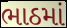
ભાઠમાં